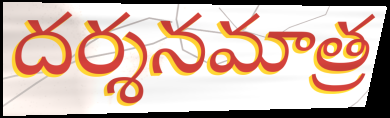
దర్శనమాత్ర